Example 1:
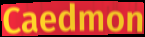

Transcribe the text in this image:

Caedmon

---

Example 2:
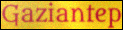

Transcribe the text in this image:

Gaziantep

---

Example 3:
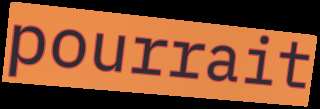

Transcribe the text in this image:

pourrait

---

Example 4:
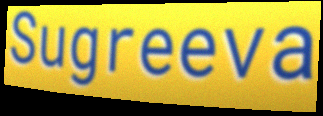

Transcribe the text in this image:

Sugreeva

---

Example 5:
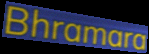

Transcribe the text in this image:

Bhramara